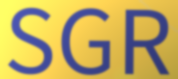
SGR